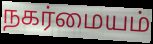
நகர்மையம்